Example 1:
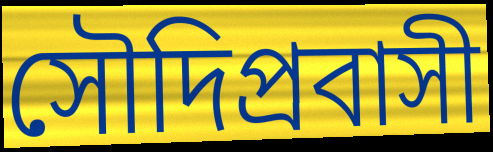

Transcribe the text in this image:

সৌদিপ্রবাসী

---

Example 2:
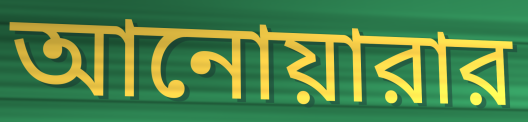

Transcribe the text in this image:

আনোয়ারার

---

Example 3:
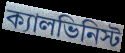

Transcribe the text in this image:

ক্যালভিনিস্ট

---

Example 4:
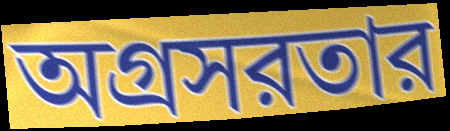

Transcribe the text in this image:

অগ্রসরতার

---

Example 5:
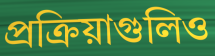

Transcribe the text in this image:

প্রক্রিয়াগুলিও